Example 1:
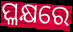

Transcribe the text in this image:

ପ୍ଳକ୍ଷରେ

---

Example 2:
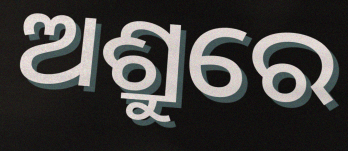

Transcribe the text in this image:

ଅଶ୍ରୁରେ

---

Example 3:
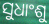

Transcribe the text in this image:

ସୁଧାଂଶୁ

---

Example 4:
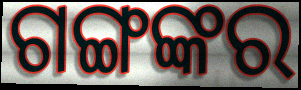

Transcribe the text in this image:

ଗଙ୍ଗଙ୍କର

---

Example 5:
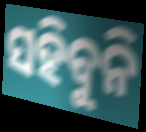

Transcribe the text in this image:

ସହିବୁନି